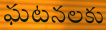
ఘటనలకు